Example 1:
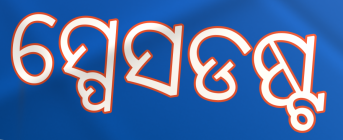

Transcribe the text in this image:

ସ୍ପେସଡଷ୍ଟ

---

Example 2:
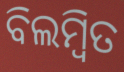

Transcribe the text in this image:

ବିଲମ୍ବିତ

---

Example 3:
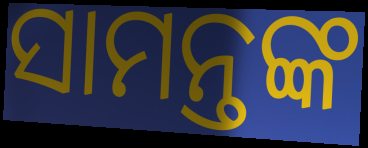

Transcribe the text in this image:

ସାମନ୍ତଙ୍କ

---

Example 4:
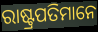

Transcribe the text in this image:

ରାଷ୍ଟ୍ରପତିମାନେ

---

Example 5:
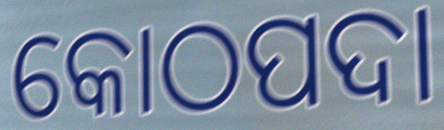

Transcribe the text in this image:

କୋଠପଦା